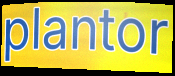
plantor